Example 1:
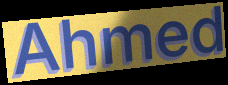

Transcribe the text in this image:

Ahmed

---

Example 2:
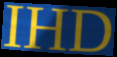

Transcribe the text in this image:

IHD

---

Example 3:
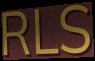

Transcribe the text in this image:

RLS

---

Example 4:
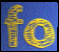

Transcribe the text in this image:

fo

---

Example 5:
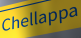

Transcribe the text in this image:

Chellappa